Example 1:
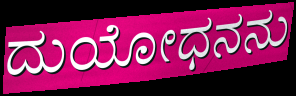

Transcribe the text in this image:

ದುಯೋಧನನು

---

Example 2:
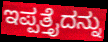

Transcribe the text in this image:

ಇಪ್ಪತ್ತೈದನ್ನು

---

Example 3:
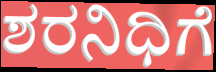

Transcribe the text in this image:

ಶರನಿಧಿಗೆ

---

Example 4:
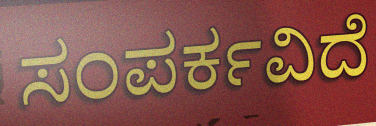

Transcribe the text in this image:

ಸಂಪರ್ಕವಿದೆ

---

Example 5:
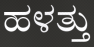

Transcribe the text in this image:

ಹಳತ್ತು